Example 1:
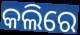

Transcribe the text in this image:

କଲିରେ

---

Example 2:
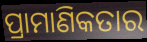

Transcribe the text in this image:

ପ୍ରାମାଣିକତାର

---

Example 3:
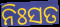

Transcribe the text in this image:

ନିଃସତ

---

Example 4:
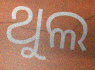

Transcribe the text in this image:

ଥୁଲ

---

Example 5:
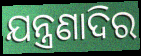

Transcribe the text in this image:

ଯନ୍ତ୍ରଣାଦିର